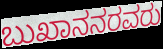
ಬುಖಾನನರವರು